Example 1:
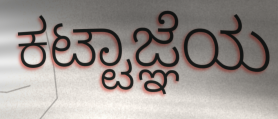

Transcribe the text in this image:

ಕಟ್ಟಾಜ್ಞೆಯ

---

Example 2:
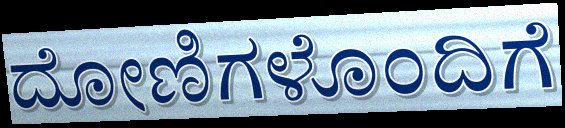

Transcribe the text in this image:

ದೋಣಿಗಳೊಂದಿಗೆ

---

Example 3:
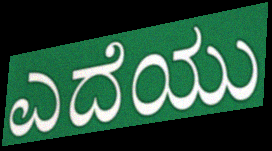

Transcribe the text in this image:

ಎದೆಯು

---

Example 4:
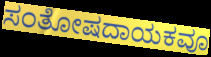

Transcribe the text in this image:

ಸಂತೋಷದಾಯಕವೂ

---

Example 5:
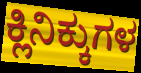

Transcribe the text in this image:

ಕ್ಲಿನಿಕ್ಕುಗಳ